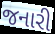
જનારી